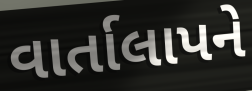
વાર્તાલાપને